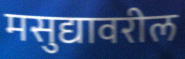
मसुद्यावरील